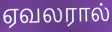
ஏவலரால்